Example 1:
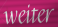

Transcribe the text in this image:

weiter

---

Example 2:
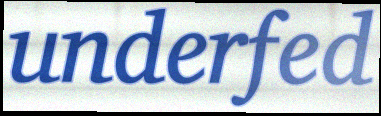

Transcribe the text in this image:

underfed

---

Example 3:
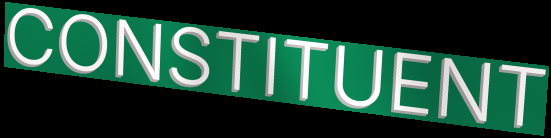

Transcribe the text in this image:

CONSTITUENT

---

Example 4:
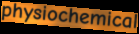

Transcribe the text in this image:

physiochemical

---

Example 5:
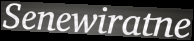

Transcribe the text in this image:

Senewiratne